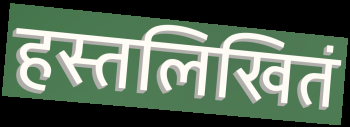
हस्तलिखितं